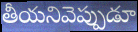
తీయనివెప్పుడూ